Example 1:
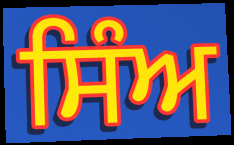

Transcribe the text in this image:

ਸਿੰਅ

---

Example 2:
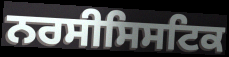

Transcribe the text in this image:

ਨਰਸੀਸਿਸਟਿਕ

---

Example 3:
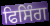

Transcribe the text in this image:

ਫਿਸਿੰਗ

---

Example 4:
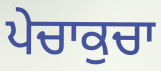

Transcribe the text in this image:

ਪੇਚਾਕੁਚਾ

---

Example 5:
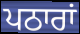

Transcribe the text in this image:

ਪਠਾਰਾਂ